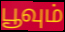
பூவும்